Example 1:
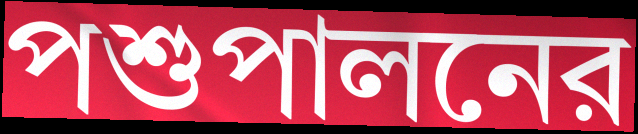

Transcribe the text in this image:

পশুপালনের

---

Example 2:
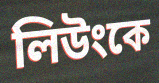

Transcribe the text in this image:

লিউংকে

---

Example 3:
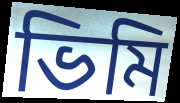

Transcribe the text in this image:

ভিমি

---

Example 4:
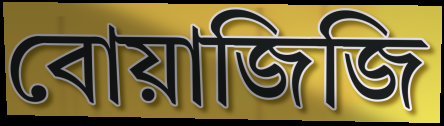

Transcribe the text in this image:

বোয়াজিজি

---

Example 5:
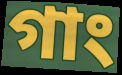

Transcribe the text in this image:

গাং